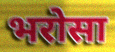
भरोसा